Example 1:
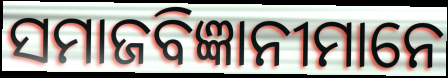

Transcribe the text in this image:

ସମାଜବିଜ୍ଞାନୀମାନେ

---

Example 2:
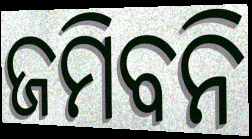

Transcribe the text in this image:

ଜମିବନି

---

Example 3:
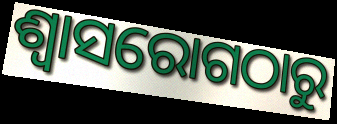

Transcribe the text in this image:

ଶ୍ୱାସରୋଗଠାରୁ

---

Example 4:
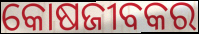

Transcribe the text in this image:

କୋଷଜୀବକର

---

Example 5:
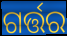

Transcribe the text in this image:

ଗର୍ତ୍ତର